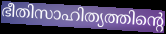
ഭീതിസാഹിത്യത്തിന്റെ